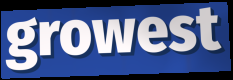
growest